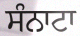
ਸੰਨਾਟਾ